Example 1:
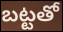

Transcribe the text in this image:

బట్టతో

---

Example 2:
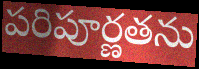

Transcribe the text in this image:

పరిపూర్ణతను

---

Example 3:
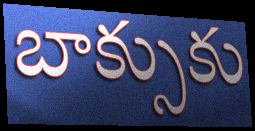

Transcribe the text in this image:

బాక్సుకు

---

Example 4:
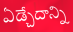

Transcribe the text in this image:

ఏడ్చేదాన్ని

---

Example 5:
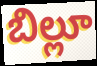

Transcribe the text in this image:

బిల్లూ